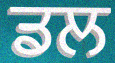
ਡਲ